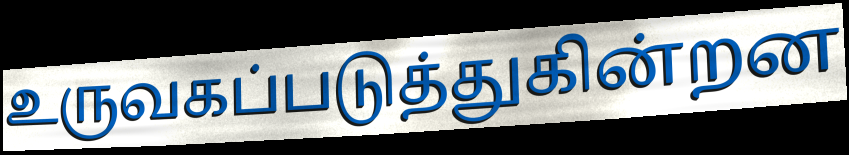
உருவகப்படுத்துகின்றன